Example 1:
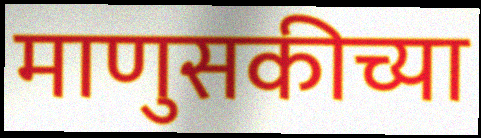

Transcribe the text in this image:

माणुसकीच्या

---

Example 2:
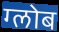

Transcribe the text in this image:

ग्लोब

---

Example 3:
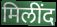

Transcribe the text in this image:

मिलींद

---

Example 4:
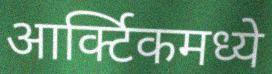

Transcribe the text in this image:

आर्क्टिकमध्ये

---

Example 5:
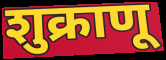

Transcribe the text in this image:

शुक्राणू